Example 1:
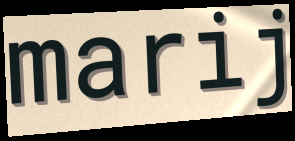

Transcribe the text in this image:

marij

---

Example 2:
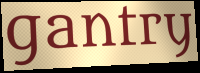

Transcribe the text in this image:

gantry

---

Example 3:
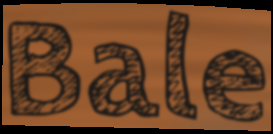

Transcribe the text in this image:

Bale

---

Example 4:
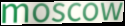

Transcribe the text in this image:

moscow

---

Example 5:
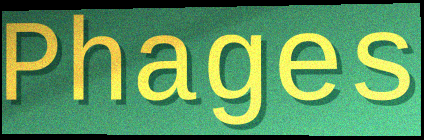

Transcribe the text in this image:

Phages